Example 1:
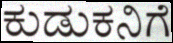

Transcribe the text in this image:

ಕುಡುಕನಿಗೆ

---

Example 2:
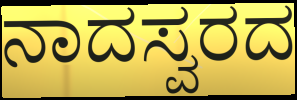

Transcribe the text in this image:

ನಾದಸ್ವರದ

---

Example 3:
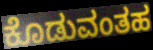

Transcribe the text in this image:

ಕೊಡುವಂತಹ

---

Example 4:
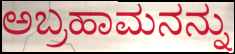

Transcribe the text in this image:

ಅಬ್ರಹಾಮನನ್ನು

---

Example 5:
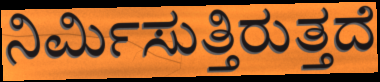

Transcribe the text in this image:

ನಿರ್ಮಿಸುತ್ತಿರುತ್ತದೆ